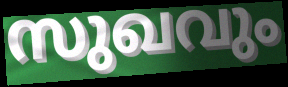
സുഖവും